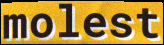
molest